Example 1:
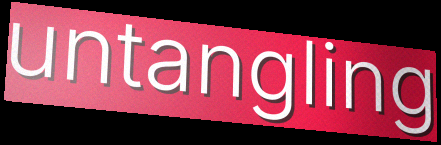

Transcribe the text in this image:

untangling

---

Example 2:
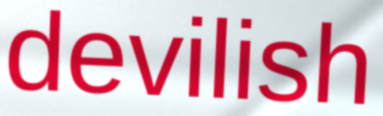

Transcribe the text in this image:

devilish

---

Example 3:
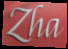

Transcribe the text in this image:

Zha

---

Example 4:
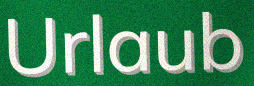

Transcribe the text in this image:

Urlaub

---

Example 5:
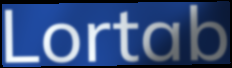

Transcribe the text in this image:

Lortab